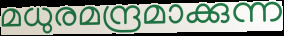
മധുരമന്ദ്രമാക്കുന്ന